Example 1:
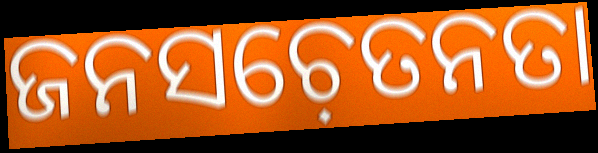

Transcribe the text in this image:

ଜନସଚ଼େତନତା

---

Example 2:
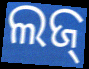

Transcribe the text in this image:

ଲଜ୍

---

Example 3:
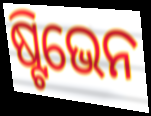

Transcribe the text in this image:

ଷ୍ଟିଭେନ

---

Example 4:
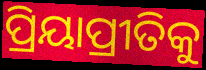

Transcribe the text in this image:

ପ୍ରିୟାପ୍ରୀତିକୁ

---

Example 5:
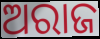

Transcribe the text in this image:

ଅରାଜ